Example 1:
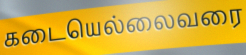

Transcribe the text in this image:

கடையெல்லைவரை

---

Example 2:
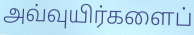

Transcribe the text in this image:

அவ்வுயிர்களைப்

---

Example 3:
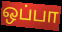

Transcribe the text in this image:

ஒப்பா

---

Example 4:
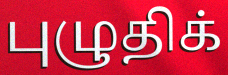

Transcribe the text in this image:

புழுதிக்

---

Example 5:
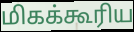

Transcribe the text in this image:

மிகக்கூரிய